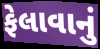
ફેલાવાનું